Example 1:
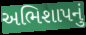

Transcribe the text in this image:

અભિશાપનું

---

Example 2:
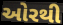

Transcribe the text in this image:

ઓરથી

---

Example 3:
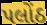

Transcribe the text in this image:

પલોંઠ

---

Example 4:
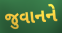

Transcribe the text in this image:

જુવાનને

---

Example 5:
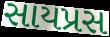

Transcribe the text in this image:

સાયપ્રસ